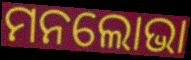
ମନଲୋଭା